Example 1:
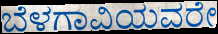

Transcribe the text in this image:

ಬೆಳಗಾವಿಯವರೇ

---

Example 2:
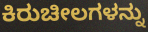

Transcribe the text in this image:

ಕಿರುಚೀಲಗಳನ್ನು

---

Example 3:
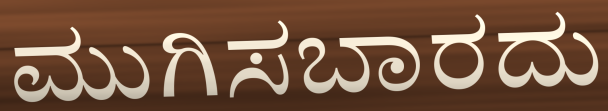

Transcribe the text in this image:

ಮುಗಿಸಬಾರದು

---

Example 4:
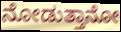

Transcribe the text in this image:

ನೋಡುತ್ತಾನೋ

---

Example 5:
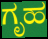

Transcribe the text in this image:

ಗೃಹ